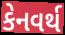
કેનવર્થ